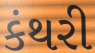
કંથરી